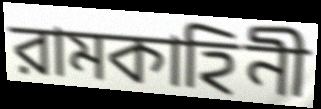
রামকাহিনী